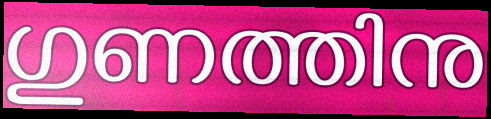
ഗുണത്തിനു